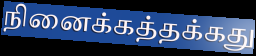
நினைக்கத்தக்கது